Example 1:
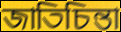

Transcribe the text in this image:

জাতিচিন্তা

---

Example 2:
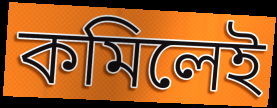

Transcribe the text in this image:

কমিলেই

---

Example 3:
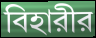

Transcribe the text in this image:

বিহারীর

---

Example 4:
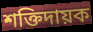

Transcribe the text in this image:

শক্তিদায়ক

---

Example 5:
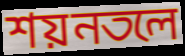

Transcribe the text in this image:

শয়নতলে